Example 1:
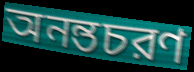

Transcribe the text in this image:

অনন্তচরণ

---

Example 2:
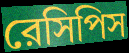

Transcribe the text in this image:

রেসিপিস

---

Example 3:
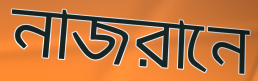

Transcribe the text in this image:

নাজরানে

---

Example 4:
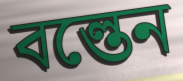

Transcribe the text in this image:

বল্তেন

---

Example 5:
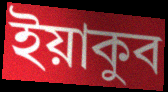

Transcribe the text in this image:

ইয়াকুব